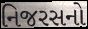
નિજરસનો